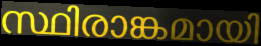
സ്ഥിരാങ്കമായി